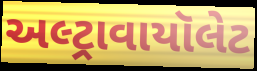
અલ્ટ્રાવાયૉલેટ